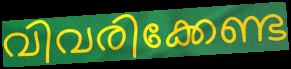
വിവരിക്കേണ്ട